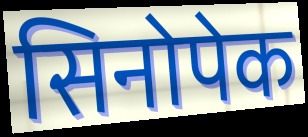
सिनोपेक